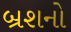
બ્રશનો